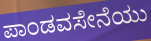
ಪಾಂಡವಸೇನೆಯು